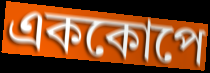
এককোপে